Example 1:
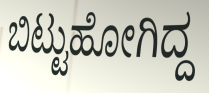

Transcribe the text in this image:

ಬಿಟ್ಟುಹೋಗಿದ್ದ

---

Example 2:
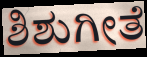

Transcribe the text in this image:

ಶಿಶುಗೀತೆ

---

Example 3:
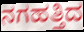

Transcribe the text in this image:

ನಗಹತ್ತಿದ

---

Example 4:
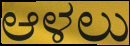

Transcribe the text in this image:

ಆಳಲು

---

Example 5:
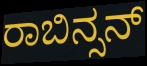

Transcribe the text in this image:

ರಾಬಿನ್ಸನ್